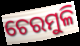
ଚେରମୁଳି